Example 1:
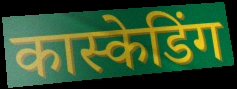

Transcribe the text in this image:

कास्केडिंग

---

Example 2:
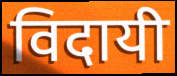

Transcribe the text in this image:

विदायी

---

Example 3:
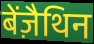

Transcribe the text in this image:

बेंज़ैथिन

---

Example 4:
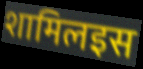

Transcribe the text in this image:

शामिलइस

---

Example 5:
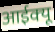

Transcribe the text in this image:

आईक्‍यू